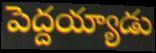
పెద్దయ్యాడు